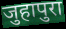
जुहापुरा